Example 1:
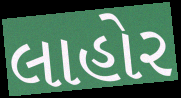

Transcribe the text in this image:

લાહોર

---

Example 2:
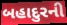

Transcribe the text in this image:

બહાદુરની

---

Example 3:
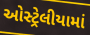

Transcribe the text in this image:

ઓસ્ટ્રેલીયામાં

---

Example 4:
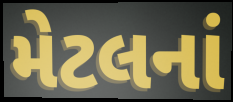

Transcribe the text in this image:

મેટલનાં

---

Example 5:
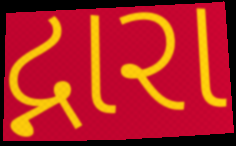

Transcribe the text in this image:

દ્નારા